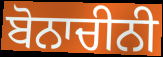
ਬੋਨਾਚੀਨੀ